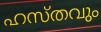
ഹസ്തവും